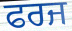
ਫਰਜ